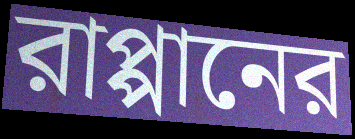
রাপ্পানের